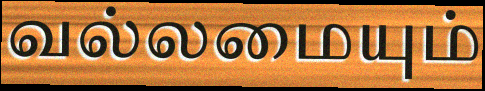
வல்லமையும்